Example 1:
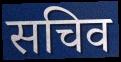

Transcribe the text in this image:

सचिव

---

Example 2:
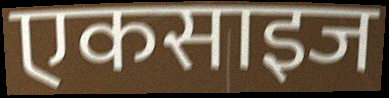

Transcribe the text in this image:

एकसाइज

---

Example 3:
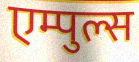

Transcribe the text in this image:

एम्पुल्स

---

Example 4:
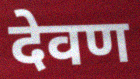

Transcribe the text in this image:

देवण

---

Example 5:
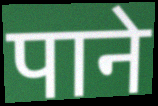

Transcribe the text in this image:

पाने